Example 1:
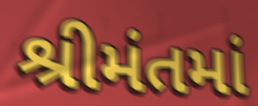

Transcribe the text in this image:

શ્રીમંતમાં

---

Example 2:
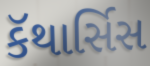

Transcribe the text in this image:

કૅથાર્સિસ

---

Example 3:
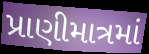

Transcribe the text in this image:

પ્રાણીમાત્રમાં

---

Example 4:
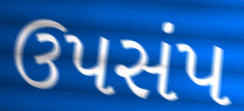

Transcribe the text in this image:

ઉપસંપ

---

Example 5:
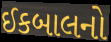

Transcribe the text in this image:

ઈકબાલનો